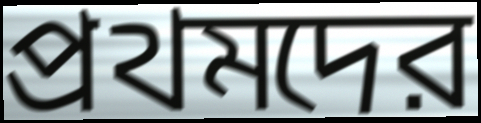
প্রথমদের